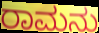
ರಾಮನು